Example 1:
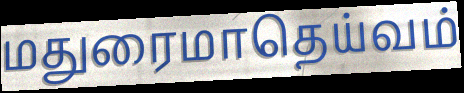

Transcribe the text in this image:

மதுரைமாதெய்வம்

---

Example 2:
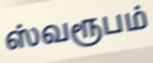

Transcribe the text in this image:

ஸ்வரூபம்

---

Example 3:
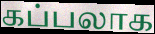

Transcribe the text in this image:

கப்பலாக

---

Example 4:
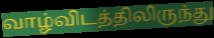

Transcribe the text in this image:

வாழ்விடத்திலிருந்து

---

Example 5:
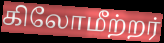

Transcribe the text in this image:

கிலோமீற்றர்